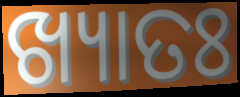
ଖ୍ୟାତଃ